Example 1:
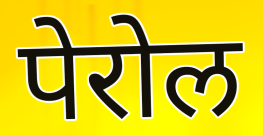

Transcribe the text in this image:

पेरोल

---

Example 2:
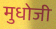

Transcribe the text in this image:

मुधोजी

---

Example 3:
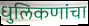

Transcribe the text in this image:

धुलिकणांचा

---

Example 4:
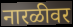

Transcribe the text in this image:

नारळीवर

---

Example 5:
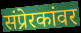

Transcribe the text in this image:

संप्रेरकांवर